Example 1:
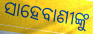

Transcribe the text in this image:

ସାହେବାଣୀଙ୍କୁ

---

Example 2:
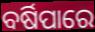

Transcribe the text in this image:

ବର୍ଷିପାରେ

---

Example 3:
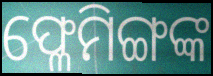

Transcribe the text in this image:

ଫ୍ଳେମିଙ୍ଗଙ୍କ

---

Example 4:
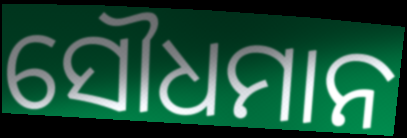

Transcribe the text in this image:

ସୌଧମାନ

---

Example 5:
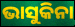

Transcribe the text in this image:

ଭାସୁକିନା